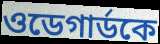
ওডেগার্ডকে